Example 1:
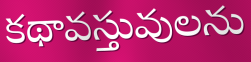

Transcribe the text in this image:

కథావస్తువులను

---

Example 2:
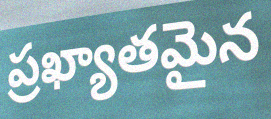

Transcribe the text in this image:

ప్రఖ్యాతమైన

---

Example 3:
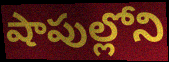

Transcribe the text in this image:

షాపుల్లోని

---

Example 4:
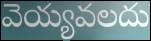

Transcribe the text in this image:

వెయ్యవలదు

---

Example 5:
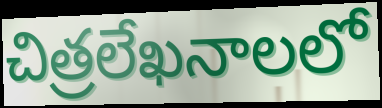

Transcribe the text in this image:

చిత్రలేఖనాలలో